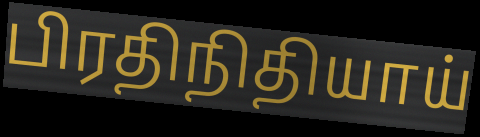
பிரதிநிதியாய்